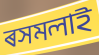
ৰসমলাই